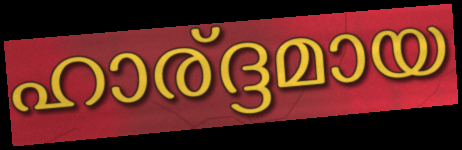
ഹാര്ദ്ദമായ